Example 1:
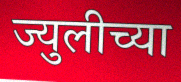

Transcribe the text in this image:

ज्युलीच्या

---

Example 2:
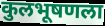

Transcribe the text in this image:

कुलभूषणला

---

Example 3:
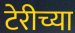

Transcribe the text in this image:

टेरीच्या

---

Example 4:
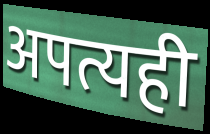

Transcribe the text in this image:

अपत्यही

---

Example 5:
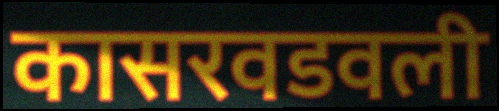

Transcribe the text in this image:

कासरवडवली